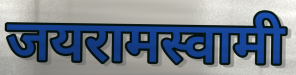
जयरामस्वामी